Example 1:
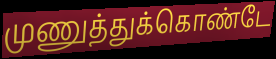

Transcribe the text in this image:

முணுத்துக்கொண்டே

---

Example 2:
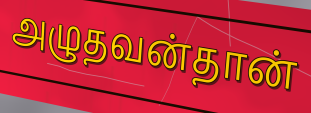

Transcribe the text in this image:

அழுதவன்தான்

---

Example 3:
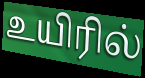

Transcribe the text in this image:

உயிரில்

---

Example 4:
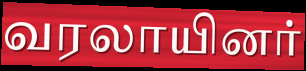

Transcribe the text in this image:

வரலாயினர்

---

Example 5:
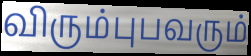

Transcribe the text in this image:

விரும்புபவரும்